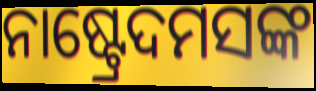
ନାଷ୍ଟ୍ରେଦମସଙ୍କ